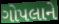
ગોપલાને